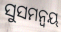
ସୁସମନ୍ୱୟ